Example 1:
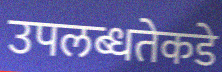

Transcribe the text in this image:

उपलब्धतेकडे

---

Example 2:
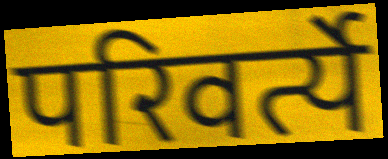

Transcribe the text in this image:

परिवर्त्ये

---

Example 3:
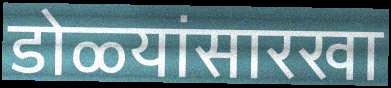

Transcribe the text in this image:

डोळ्यांसारखा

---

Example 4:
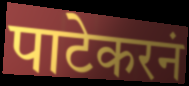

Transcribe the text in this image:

पाटेकरनं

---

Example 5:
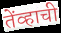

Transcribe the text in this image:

तेंव्हाची